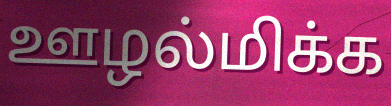
ஊழல்மிக்க